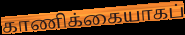
காணிக்கையாகப்